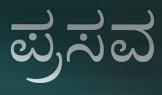
ಪ್ರಸವ